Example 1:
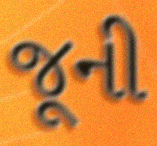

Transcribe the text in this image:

જૂની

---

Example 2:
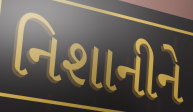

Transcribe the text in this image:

નિશાનીને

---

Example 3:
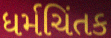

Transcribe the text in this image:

ધર્મચિંતક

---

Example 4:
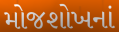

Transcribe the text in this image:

મોજશોખનાં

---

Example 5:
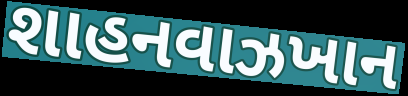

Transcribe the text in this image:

શાહનવાઝખાન